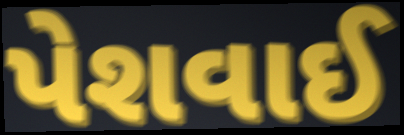
પેશવાઈ